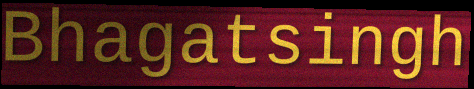
Bhagatsingh